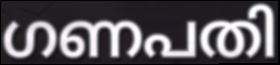
ഗണപതി